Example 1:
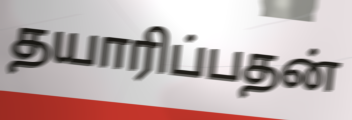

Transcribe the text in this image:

தயாரிப்பதன்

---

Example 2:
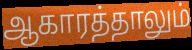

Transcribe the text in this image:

ஆகாரத்தாலும்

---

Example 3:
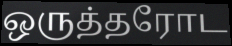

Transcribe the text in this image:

ஒருத்தரோட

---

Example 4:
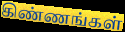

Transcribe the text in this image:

கிண்ணங்கள்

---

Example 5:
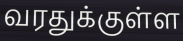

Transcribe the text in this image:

வரதுக்குள்ள